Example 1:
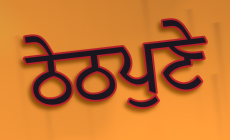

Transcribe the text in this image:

ਠੇਠਪੁਣੇ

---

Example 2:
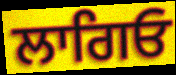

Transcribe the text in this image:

ਲਾਗਿਓ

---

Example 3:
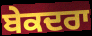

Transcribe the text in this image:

ਬੇਕਦਰਾ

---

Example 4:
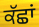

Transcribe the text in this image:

ਕੱਛਾਂ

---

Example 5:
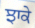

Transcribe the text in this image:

ਝਾਕੇ